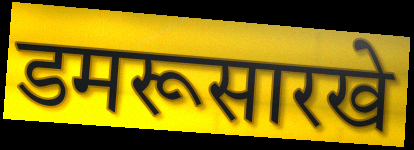
डमरूसारखे